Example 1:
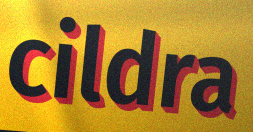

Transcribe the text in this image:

cildra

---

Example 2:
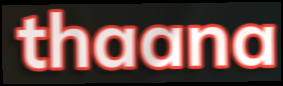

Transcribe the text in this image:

thaana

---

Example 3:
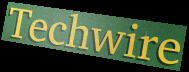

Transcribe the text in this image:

Techwire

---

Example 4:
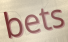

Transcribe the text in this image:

bets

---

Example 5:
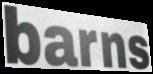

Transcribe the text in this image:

barns